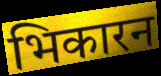
भिकारन